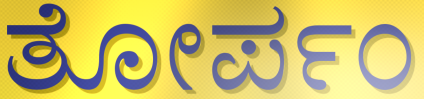
ತೋರ್ಪಂ